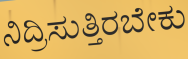
ನಿದ್ರಿಸುತ್ತಿರಬೇಕು